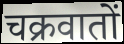
चक्रवातों